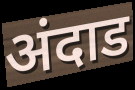
अंदाड